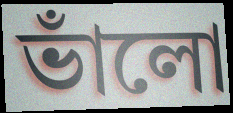
ভাঁলো